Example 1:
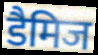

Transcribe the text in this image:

डैमिज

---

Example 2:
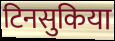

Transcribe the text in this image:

टिनसुकिया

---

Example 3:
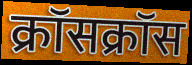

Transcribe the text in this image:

क्रॉसक्रॉस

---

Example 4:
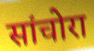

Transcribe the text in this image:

सांचोरा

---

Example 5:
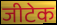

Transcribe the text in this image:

जीटेक